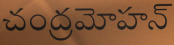
చంద్రమోహన్